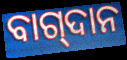
ବାଗ୍‍ଦାନ